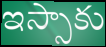
ఇస్సాకు